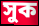
সুক